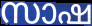
സാഷ